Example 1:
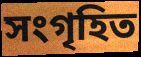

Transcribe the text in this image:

সংগৃহিত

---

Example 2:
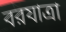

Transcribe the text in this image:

বরযাত্রা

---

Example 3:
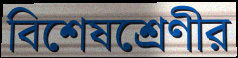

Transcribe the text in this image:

বিশেষশ্রেণীর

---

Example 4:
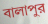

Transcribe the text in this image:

বালাপুর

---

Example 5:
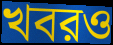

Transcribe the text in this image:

খবরও